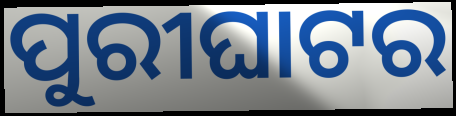
ପୁରୀଘାଟର